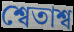
শ্বেতাশ্ব